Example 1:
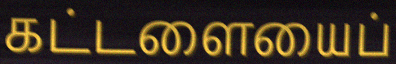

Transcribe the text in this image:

கட்டளையைப்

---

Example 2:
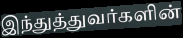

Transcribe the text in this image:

இந்துத்துவர்களின்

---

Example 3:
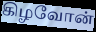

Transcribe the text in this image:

கிழவோன்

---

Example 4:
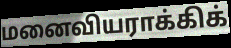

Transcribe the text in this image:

மனைவியராக்கிக்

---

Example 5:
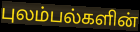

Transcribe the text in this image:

புலம்பல்களின்